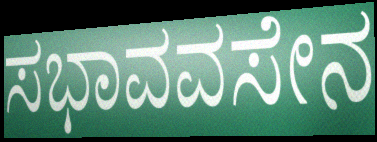
ಸಭಾವವಸೇನ